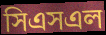
সিএসএল